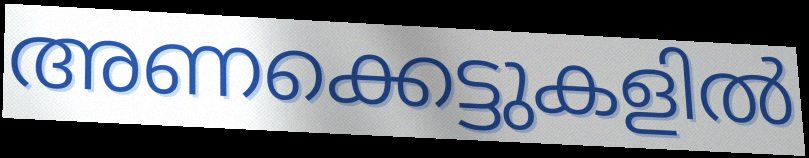
അണക്കെട്ടുകളിൽ